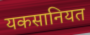
यकसानियत